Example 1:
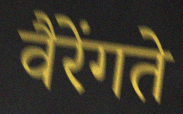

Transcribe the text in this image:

वैरेंगते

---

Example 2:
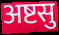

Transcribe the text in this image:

अष्टसु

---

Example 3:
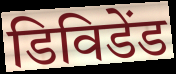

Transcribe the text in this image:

डिविडेंड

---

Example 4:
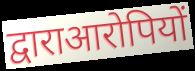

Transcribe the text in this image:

द्वाराआरोपियों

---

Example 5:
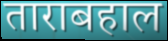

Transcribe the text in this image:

ताराबहाल